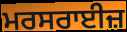
ਮਰਸਰਾਈਜ਼